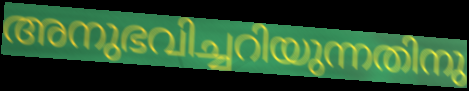
അനുഭവിച്ചറിയുന്നതിനു